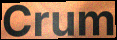
Crum